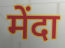
मेंदा